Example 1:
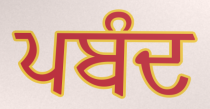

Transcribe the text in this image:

ਪਬੰਦ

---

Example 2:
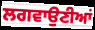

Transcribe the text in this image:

ਲਗਵਾਉਣੀਆਂ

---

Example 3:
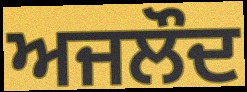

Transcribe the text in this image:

ਅਜਲੌਦ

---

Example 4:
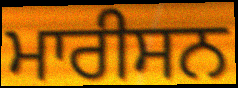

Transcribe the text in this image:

ਮਾਰੀਸਨ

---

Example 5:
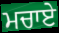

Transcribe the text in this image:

ਮਚਾਏ